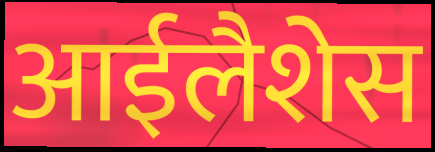
आईलैशेस